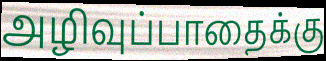
அழிவுப்பாதைக்கு